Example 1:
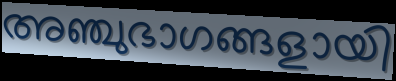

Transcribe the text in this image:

അഞ്ചുഭാഗങ്ങളായി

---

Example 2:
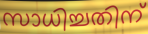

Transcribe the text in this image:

സാധിച്ചതിന്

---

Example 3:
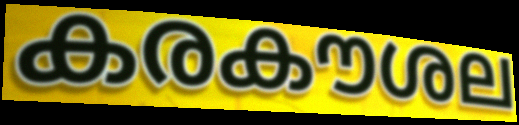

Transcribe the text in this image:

കരകൗശല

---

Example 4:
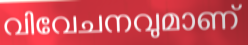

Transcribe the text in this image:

വിവേചനവുമാണ്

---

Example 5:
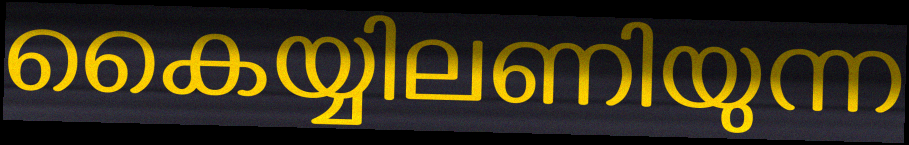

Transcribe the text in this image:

കൈയ്യിലണിയുന്ന